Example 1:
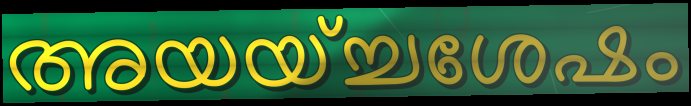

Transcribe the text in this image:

അയയ്ച്ചശേഷം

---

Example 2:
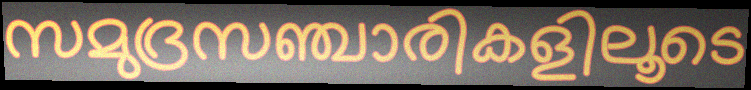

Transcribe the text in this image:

സമുദ്രസഞ്ചാരികളിലൂടെ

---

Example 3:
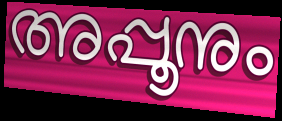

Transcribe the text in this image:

അപ്പൂനും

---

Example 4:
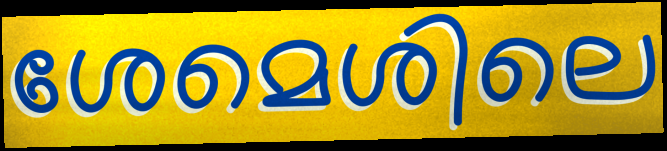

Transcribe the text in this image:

ശേമെശിലെ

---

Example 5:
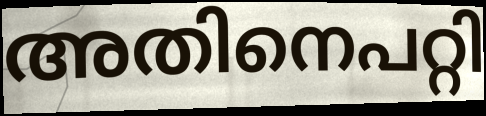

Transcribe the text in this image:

അതിനെപറ്റി